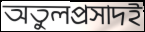
অতুলপ্রসাদই